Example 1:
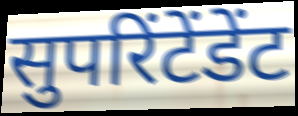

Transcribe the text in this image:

सुपरिंटेंडेंट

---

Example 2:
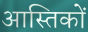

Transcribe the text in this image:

आस्तिकों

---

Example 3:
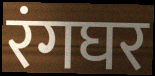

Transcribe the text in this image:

रंगघर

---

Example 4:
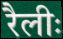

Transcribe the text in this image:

रैलीः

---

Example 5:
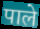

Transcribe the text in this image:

पाले